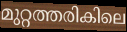
മുറ്റത്തരികിലെ